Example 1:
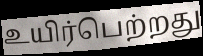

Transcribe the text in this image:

உயிர்பெற்றது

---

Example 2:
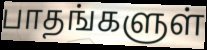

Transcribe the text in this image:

பாதங்களுள்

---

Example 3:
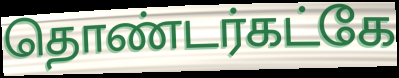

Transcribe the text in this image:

தொண்டர்கட்கே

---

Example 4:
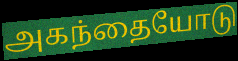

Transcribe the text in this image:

அகந்தையோடு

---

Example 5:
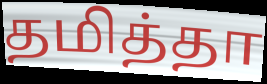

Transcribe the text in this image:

தமித்தா